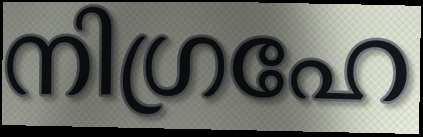
നിഗ്രഹേ